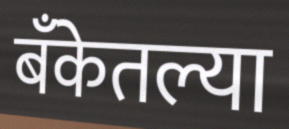
बँकेतल्या